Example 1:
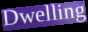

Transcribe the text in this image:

Dwelling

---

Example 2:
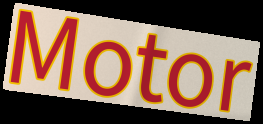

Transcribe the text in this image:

Motor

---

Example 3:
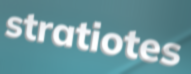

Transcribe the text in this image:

stratiotes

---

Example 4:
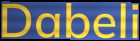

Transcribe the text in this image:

Dabeli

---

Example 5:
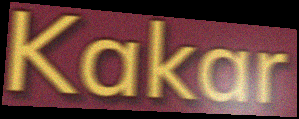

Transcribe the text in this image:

Kakar